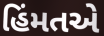
હિંમતએ